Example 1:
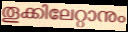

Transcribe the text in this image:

തൂക്കിലേറ്റാനും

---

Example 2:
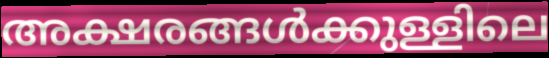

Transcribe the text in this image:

അക്ഷരങ്ങൾക്കുള്ളിലെ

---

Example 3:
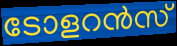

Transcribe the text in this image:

ടോളറൻസ്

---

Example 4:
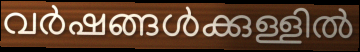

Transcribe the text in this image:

വർഷങ്ങൾക്കുള്ളിൽ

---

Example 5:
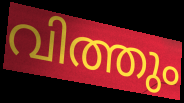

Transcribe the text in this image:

വിത്തും